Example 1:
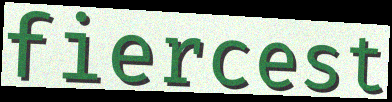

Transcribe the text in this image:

fiercest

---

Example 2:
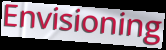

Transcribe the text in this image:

Envisioning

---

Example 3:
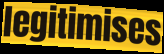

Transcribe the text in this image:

legitimises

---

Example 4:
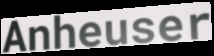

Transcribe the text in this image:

Anheuser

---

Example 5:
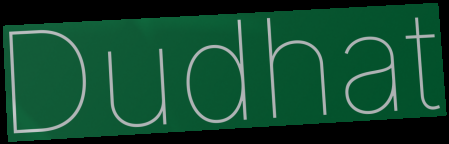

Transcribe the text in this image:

Dudhat